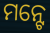
ମନ୍ଟେ